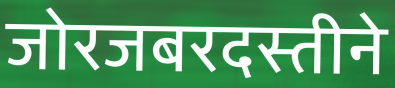
जोरजबरदस्तीने